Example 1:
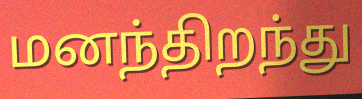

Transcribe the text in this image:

மனந்திறந்து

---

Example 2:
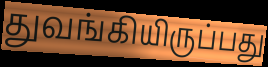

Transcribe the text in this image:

துவங்கியிருப்பது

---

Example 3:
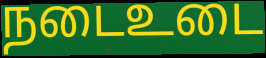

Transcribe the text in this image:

நடைஉடை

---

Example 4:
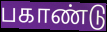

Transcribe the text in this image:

பகாண்டு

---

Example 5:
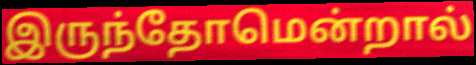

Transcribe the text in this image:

இருந்தோமென்றால்